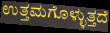
ಉತ್ತಮಗೊಳ್ಳುತ್ತದೆ